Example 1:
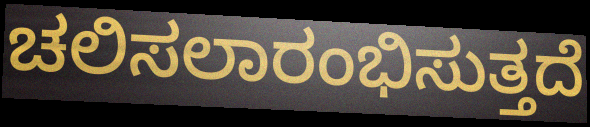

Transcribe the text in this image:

ಚಲಿಸಲಾರಂಭಿಸುತ್ತದೆ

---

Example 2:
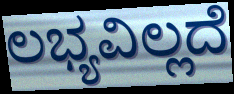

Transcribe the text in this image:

ಲಭ್ಯವಿಲ್ಲದೆ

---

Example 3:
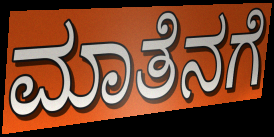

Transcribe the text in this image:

ಮಾತೆನಗೆ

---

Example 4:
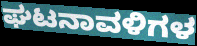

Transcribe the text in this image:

ಘಟನಾವಳಿಗಳ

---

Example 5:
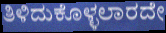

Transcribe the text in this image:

ತಿಳಿದುಕೊಳ್ಳಲಾರದೇ